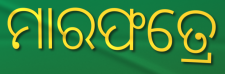
ମାରଫତ୍ରେ